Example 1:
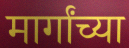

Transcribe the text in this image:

मार्गांच्या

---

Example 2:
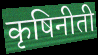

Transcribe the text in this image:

कृषिनीती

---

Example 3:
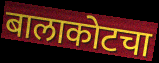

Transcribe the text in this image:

बालाकोटचा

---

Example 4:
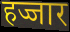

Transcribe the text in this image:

हज्जार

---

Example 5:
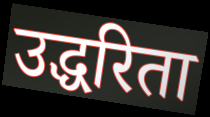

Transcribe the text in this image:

उद्धरिता